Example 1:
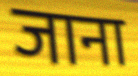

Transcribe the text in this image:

जाना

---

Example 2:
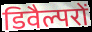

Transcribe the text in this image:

डिवैल्परों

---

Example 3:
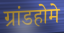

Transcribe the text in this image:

ग्रांडहोमे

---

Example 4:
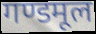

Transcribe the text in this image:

गण्डमूल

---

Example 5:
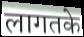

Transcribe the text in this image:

लागतके